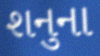
શનુના